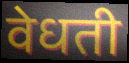
वेधती